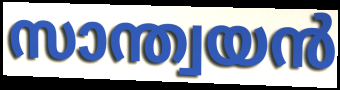
സാന്ത്വയൻ